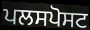
ਪਲਸਪੋਸਟ